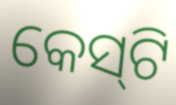
କେସ୍‌ଟି